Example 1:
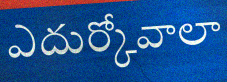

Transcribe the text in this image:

ఎదుర్కోవాలా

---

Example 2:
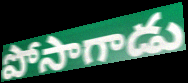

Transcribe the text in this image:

పోసాగాడు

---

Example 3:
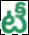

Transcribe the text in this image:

టీ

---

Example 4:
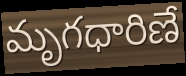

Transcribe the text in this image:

మృగధారిణే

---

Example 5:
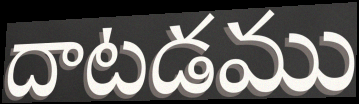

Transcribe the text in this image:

దాటడము